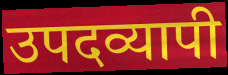
उपदव्यापी